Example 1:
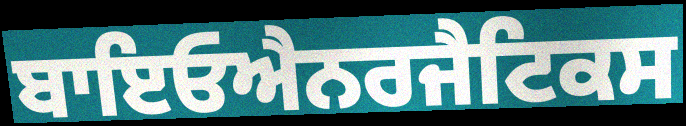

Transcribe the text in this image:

ਬਾਇਓਐਨਰਜੈਟਿਕਸ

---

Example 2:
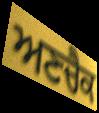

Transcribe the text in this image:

ਅਣਚੈਕ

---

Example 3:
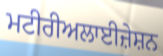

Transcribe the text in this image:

ਮਟੀਰੀਅਲਾਈਜ਼ੇਸ਼ਨ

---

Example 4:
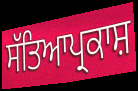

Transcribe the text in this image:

ਸੱਤਿਆਪ੍ਰਕਾਸ਼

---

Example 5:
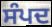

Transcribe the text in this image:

ਸੰਪਦ